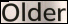
Older